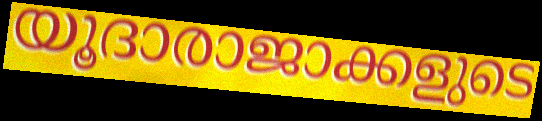
യൂദാരാജാക്കളുടെ